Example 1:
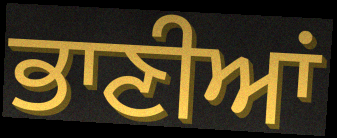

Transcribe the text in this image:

ਭਾਣੀਆਂ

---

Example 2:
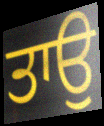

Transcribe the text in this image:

ਤਾਉ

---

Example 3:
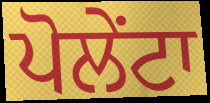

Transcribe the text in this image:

ਪੋਲੇਂਟਾ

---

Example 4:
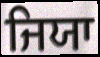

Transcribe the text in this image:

ਜਿਯਾ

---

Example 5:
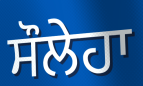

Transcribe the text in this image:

ਸੌਲੇਹਾ